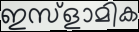
ഇസ്ളാമിക